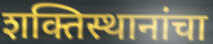
शक्तिस्थानांचा